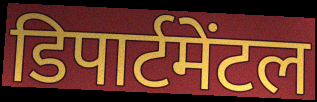
डिपार्टमेंटल